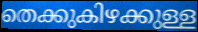
തെക്കുകിഴക്കുള്ള